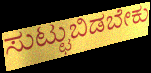
ಸುಟ್ಟುಬಿಡಬೇಕು